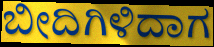
ಬೀದಿಗಿಳಿದಾಗ